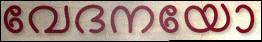
വേദനയോ